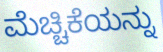
ಮೆಚ್ಚಿಕೆಯನ್ನು